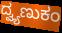
ದ್ವ್ಯಣುಕಂ